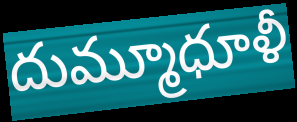
దుమ్మూధూళీ